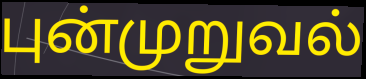
புன்முறுவல்